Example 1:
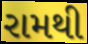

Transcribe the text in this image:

રામથી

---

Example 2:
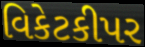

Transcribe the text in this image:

વિકેટકીપર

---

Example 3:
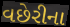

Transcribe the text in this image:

વછેરીના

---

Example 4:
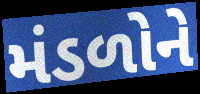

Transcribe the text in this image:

મંડળોને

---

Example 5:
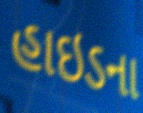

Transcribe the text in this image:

હાઇડના